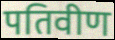
पतिवीण